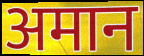
अमान